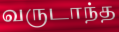
வருடாந்த